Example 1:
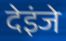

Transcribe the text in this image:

देइंजे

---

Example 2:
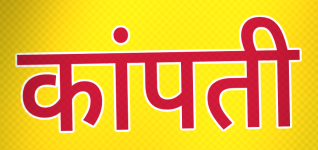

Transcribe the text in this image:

कांपती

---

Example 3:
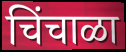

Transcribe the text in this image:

चिंचाळा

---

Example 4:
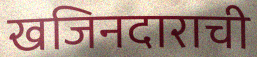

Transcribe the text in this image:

खजिनदाराची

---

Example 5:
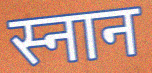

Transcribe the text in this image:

स्नान